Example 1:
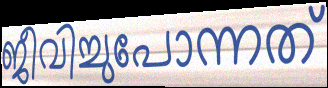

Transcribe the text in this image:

ജീവിച്ചുപോന്നത്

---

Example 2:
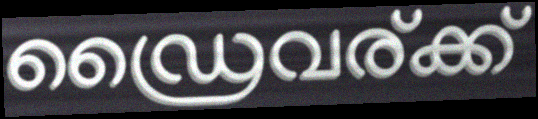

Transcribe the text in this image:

ഡ്രൈവര്ക്ക്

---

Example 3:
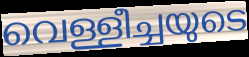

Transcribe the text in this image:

വെള്ളീച്ചയുടെ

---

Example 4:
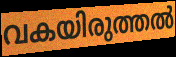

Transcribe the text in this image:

വകയിരുത്തൽ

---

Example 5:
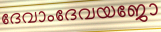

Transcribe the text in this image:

ദേവാംദേവയജോ